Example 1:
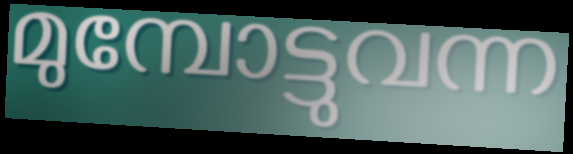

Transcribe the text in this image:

മുമ്പോട്ടുവന്ന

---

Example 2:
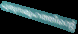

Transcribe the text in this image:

പുതുസമൂഹത്തിന്റെ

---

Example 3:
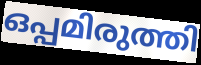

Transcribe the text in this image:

ഒപ്പമിരുത്തി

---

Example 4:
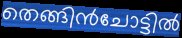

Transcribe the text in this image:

തെങ്ങിൻചോട്ടിൽ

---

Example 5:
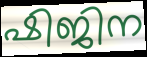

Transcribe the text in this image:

ഷിജിന